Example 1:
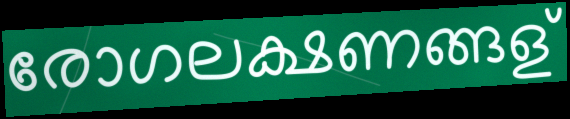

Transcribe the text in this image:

രോഗലക്ഷണങ്ങള്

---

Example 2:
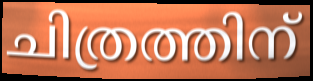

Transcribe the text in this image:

ചിത്രത്തിന്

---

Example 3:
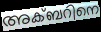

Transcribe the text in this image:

അക്ബറിനെ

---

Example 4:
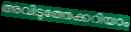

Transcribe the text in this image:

അവിടുത്തേക്കറിയാം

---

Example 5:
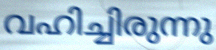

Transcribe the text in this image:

വഹിച്ചിരുന്നു